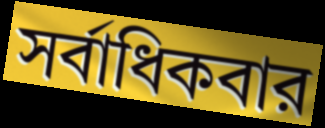
সর্বাধিকবার